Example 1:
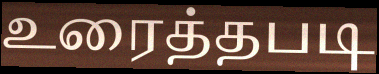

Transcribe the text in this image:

உரைத்தபடி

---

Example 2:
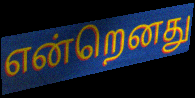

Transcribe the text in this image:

என்றெனது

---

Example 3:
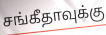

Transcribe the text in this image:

சங்கீதாவுக்கு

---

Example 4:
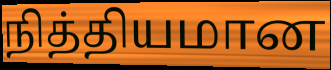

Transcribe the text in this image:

நித்தியமான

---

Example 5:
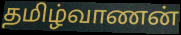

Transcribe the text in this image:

தமிழ்வாணன்